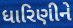
ધારિણીને